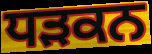
ਧੜਕਨ